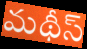
మథీస్